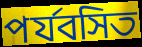
পর্যবসিত